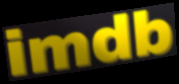
imdb